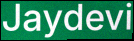
Jaydevi